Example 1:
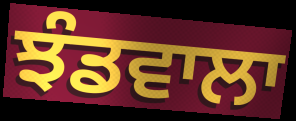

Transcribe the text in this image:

ਝੰਡਵਾਲਾ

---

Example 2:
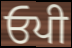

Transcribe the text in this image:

ਓਪੀ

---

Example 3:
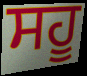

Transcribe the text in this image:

ਸਹੂ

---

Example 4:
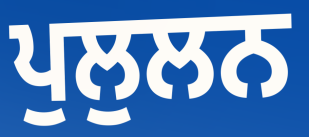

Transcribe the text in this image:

ਪੁਲੁਲਨ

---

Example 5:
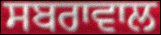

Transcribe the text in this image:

ਸਬਰਾਵਾਲ